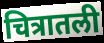
चित्रातली